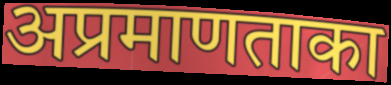
अप्रमाणताका